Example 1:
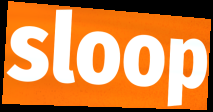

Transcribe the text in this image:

sloop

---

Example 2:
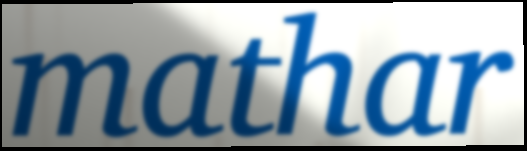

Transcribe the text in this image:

mathar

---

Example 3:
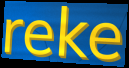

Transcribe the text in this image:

reke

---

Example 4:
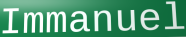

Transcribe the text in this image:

Immanuel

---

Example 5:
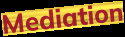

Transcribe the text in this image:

Mediation